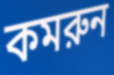
কমরুন